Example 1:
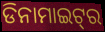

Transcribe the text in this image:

ଡିନାମାଇଟ୍‌ର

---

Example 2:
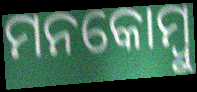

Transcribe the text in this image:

ମନକୋମ୍ବୁ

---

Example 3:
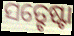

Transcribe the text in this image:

ସତ୍ଚେଷ୍ଟା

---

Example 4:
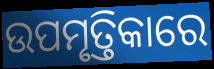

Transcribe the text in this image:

ଉପମୃତ୍ତିକାରେ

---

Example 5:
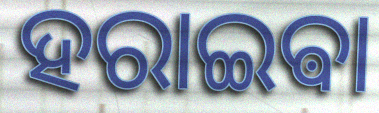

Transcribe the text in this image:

ହରାଇଵା